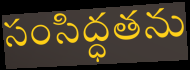
సంసిద్ధతను